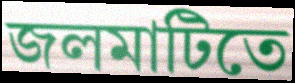
জলমাটিতে